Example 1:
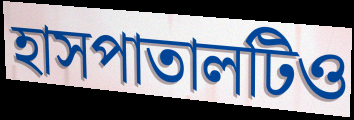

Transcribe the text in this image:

হাসপাতালটিও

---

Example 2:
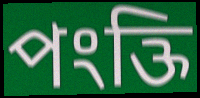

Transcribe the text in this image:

পংক্তি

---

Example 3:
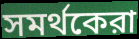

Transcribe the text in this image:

সমর্থকেরা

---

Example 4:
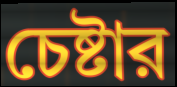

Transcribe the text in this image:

চেষ্টার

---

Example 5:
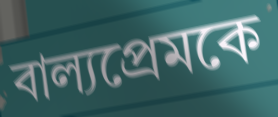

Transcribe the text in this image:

বাল্যপ্রেমকে